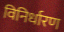
विनिर्धारण